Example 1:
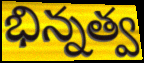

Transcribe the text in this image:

భిన్నత్వ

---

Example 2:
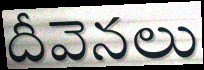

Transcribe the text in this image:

దీవెనలు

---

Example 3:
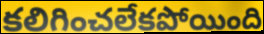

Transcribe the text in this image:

కలిగించలేకపోయింది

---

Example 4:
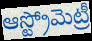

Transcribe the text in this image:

ఆస్ట్రోమెట్రీ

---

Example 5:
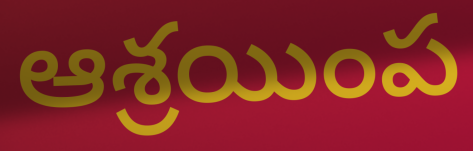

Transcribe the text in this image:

ఆశ్రయింప